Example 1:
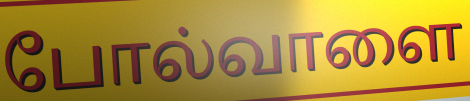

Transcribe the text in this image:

போல்வாளை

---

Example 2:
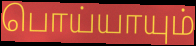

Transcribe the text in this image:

பொய்யாயும்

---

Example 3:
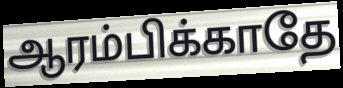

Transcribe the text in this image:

ஆரம்பிக்காதே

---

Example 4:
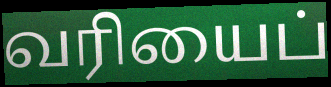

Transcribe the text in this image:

வரியைப்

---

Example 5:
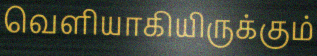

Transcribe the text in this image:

வெளியாகியிருக்கும்